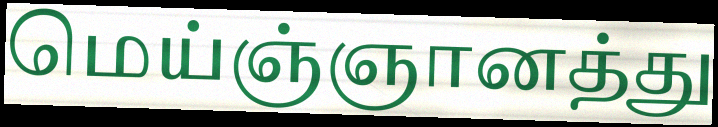
மெய்ஞ்ஞானத்து